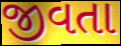
જીવતા